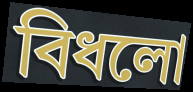
বিধলো